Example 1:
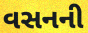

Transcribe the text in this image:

વસનની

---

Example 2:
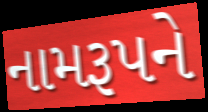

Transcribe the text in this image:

નામરૂપને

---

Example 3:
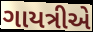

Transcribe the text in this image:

ગાયત્રીએ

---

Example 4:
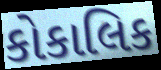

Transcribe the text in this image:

કોકાલિક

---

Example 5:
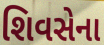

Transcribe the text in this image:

શિવસેના